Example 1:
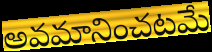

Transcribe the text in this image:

అవమానించటమే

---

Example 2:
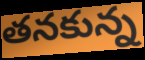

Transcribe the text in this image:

తనకున్న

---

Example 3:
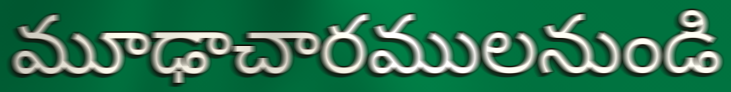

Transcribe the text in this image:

మూఢాచారములనుండి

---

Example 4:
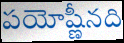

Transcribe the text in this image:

పయోష్ణీనది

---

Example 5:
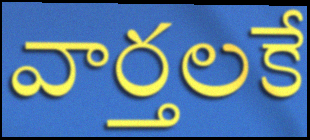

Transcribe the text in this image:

వార్తలకే